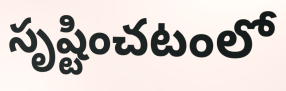
సృష్టించటంలో